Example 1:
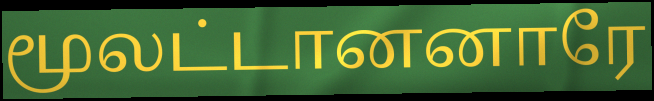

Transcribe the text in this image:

மூலட்டானனாரே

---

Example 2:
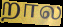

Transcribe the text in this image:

றால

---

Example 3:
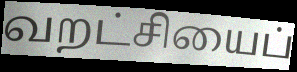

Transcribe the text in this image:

வறட்சியைப்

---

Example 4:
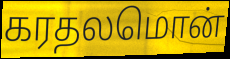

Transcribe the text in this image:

கரதலமொன்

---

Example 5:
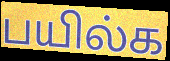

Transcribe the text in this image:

பயில்க